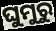
ଘୁମୁରୁ